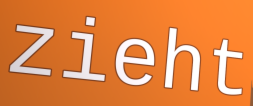
zieht